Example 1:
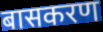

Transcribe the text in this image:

बासकरण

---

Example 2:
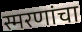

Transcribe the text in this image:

स्मरणांचा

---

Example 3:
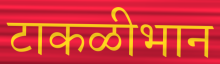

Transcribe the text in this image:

टाकळीभान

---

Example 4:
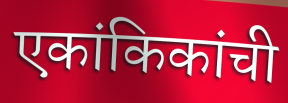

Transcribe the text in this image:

एकांकिकांची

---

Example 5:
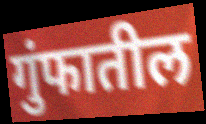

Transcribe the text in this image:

गुंफातील